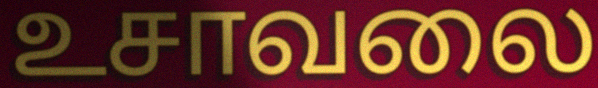
உசாவலை